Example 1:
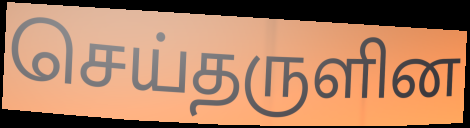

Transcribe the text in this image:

செய்தருளின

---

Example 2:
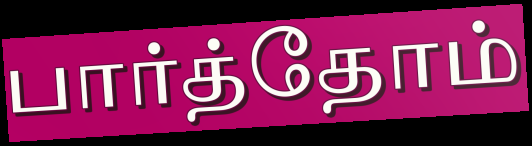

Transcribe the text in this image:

பார்த்தோம்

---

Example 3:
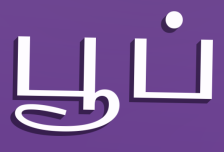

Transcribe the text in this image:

பூப்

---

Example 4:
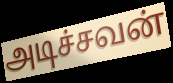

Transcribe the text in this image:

அடிச்சவன்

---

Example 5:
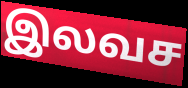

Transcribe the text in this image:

இலவச